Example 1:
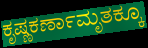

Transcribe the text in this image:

ಕೃಷ್ಣಕರ್ಣಾಮೃತಕ್ಕೂ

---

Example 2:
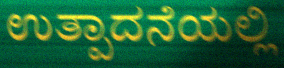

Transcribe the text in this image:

ಉತ್ಪಾದನೆಯಲ್ಲಿ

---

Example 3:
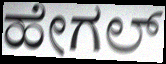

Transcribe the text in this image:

ಹೇಗಲ್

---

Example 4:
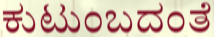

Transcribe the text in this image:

ಕುಟುಂಬದಂತೆ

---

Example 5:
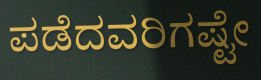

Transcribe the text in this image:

ಪಡೆದವರಿಗಷ್ಟೇ